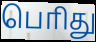
பெரிது